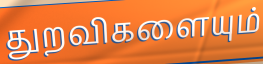
துறவிகளையும்